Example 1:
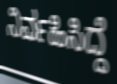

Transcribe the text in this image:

ನಿರ್ವಹಿಸಿದ್ದೆ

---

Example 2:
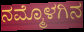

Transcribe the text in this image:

ನಮ್ಮೊಳಗಿನ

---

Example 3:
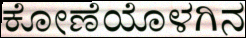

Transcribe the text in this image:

ಕೋಣೆಯೊಳಗಿನ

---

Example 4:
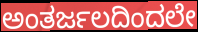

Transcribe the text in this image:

ಅಂತರ್ಜಲದಿಂದಲೇ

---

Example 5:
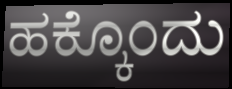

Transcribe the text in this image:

ಹಕ್ಕೊಂದು